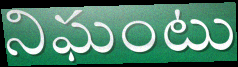
నిఘంటు